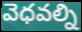
వెధవల్ని